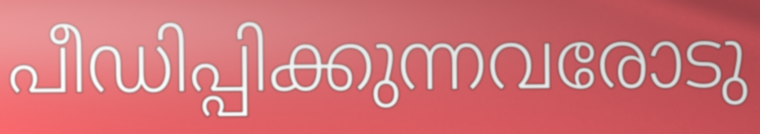
പീഡിപ്പിക്കുന്നവരോടു